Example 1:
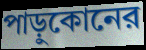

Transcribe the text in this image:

পাড়ুকোনের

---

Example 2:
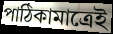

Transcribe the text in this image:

পাঠিকামাত্রেই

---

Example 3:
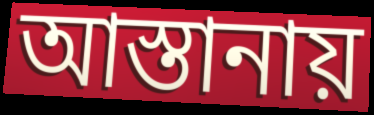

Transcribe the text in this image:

আস্তানায়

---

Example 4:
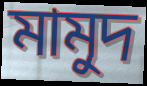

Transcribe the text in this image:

মামুদ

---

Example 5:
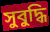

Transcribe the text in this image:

সুবুদ্ধি